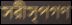
সরীসৃপগণ